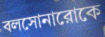
বলসোনারোকে